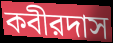
কবীরদাস